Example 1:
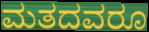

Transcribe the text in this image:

ಮತದವರೂ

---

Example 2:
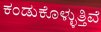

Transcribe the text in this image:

ಕಂಡುಕೊಳ್ಳುತ್ತಿವೆ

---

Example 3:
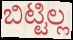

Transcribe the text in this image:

ಬಿಟ್ಟಿಲ್ಲ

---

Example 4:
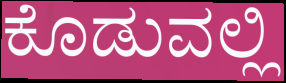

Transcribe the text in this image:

ಕೊಡುವಲ್ಲಿ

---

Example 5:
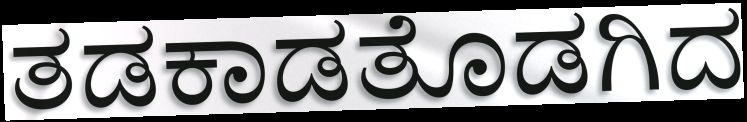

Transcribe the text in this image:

ತಡಕಾಡತೊಡಗಿದ